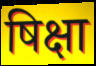
षिक्षा